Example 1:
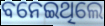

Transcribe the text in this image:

ବନେଇଥିଲେ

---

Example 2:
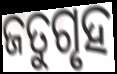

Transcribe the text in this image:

ଜତୁଗୃହ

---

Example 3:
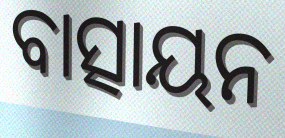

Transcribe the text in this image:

ବାତ୍ସାୟନ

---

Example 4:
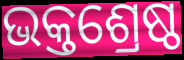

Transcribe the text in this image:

ଭକ୍ତଶ୍ରେଷ୍ଠ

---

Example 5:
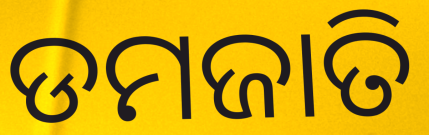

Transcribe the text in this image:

ଡମଜାତି